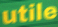
utile